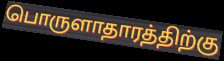
பொருளாதாரத்திற்கு